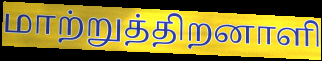
மாற்றுத்திறனாளி